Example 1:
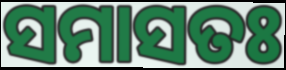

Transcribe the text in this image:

ସମାସତଃ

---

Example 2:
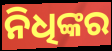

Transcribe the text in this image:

ନିଧିଙ୍କର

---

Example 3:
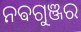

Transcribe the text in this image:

ନଵଗୁଞ୍ଜର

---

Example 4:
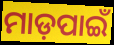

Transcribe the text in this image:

ମାଡ଼ପାଇଁ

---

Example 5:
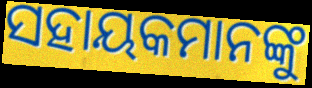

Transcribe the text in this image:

ସହାୟକମାନଙ୍କୁ